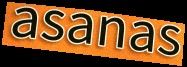
asanas